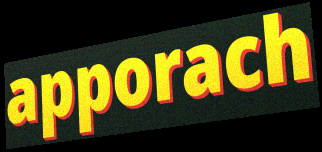
apporach